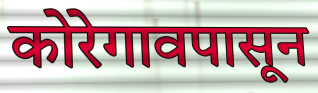
कोरेगावपासून